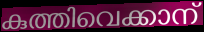
കുത്തിവെക്കാന്